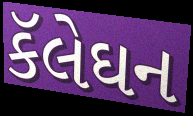
કૅલેઘન